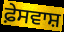
ਫ਼ੇਸਵਾਸ਼